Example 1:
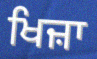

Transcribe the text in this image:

ਖਿਜ਼ਾ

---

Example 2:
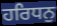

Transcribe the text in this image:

ਹਰਿਧਨੁ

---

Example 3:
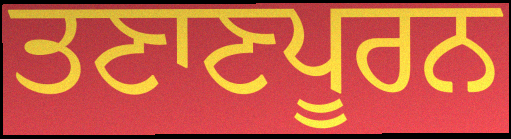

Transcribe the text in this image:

ਤਣਾਣਪੂਰਨ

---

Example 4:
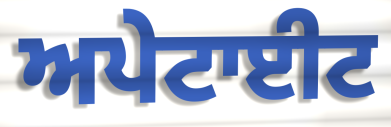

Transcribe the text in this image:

ਅਪੇਟਾਈਟ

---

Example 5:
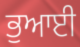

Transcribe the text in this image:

ਭੁਆਈ